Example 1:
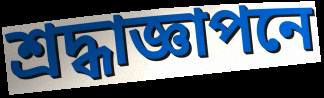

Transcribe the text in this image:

শ্রদ্ধাজ্ঞাপনে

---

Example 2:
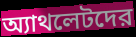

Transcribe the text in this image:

অ্যাথলেটদের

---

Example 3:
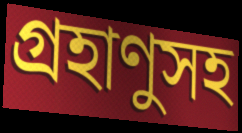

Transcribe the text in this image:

গ্রহাণুসহ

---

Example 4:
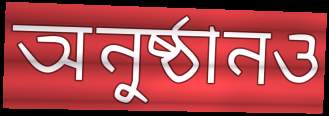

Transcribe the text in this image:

অনুষ্ঠানও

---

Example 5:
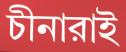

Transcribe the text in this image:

চীনারাই